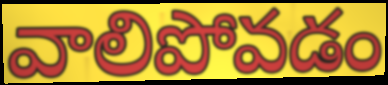
వాలిపోవడం